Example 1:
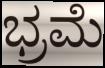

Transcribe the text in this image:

ಭ್ರಮೆ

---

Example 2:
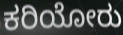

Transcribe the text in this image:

ಕರಿಯೋರು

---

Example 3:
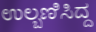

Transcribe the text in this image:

ಉಲ್ಬಣಿಸಿದ್ದ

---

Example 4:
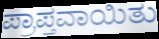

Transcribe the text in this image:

ಪ್ರಾಪ್ತವಾಯಿತು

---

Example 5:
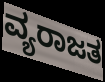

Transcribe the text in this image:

ವ್ಯರಾಜತ